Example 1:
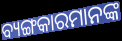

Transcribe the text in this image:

ବ୍ୟଙ୍ଗକାରମାନଙ୍କ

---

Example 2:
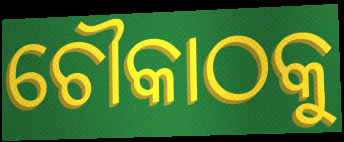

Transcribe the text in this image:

ଚୌକାଠକୁ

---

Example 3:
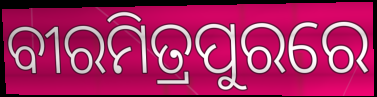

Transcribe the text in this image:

ବୀରମିତ୍ରପୁରରେ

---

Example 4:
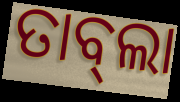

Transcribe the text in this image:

ତାବ୍‌ଲା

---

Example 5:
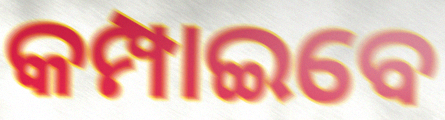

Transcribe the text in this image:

କମ୍ପାଇବେ